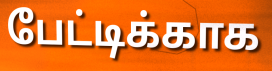
பேட்டிக்காக